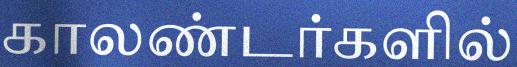
காலண்டர்களில்